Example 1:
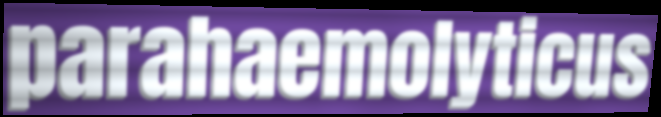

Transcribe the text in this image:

parahaemolyticus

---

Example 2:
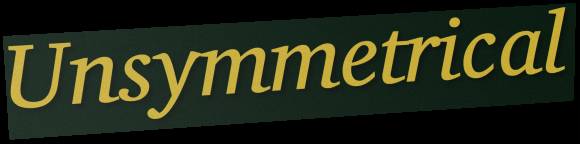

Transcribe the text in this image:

Unsymmetrical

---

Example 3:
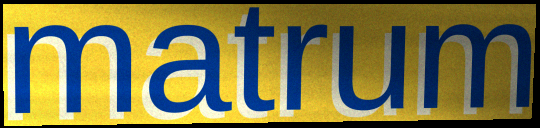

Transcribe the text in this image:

matrum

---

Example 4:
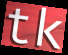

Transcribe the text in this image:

tk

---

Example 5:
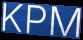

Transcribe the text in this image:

KPM